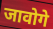
जावोगे